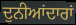
ਦੁਨੀਆਂਦਾਰਾਂ